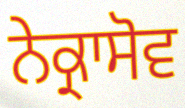
ਨੇਕ੍ਰਾਸੋਵ